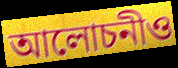
আলোচনীও